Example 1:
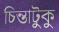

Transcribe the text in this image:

চিন্তাটুকু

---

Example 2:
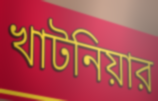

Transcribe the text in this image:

খাটনিয়ার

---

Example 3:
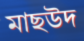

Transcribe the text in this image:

মাছউদ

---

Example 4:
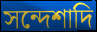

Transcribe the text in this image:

সন্দেশাদি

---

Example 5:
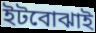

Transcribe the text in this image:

ইটবোঝাই